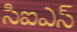
సిఐఎస్